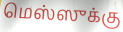
மெஸ்ஸுக்கு